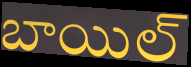
బాయిల్